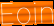
Eoin